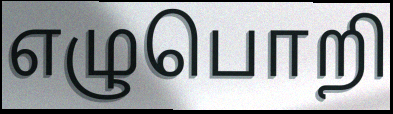
எழுபொறி